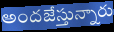
అందజేస్తున్నారు